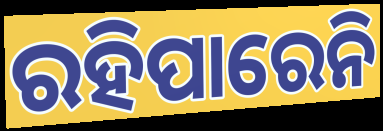
ରହିପାରେନି